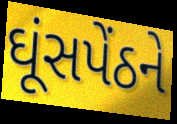
ઘૂંસપેંઠને